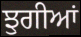
ਝੁਗੀਆਂ